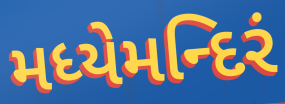
મધ્યેમન્દિરં